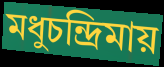
মধুচন্দ্রিমায়